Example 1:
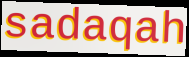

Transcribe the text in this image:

sadaqah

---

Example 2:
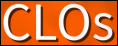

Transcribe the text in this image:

CLOs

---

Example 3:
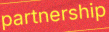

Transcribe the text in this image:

partnership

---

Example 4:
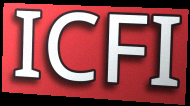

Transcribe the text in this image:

ICFI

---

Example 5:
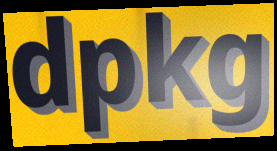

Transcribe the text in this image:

dpkg